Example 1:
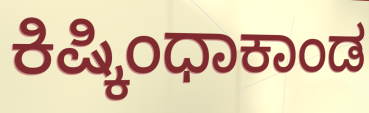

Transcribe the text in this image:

ಕಿಷ್ಕಿಂಧಾಕಾಂಡ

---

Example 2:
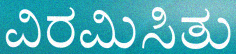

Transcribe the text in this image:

ವಿರಮಿಸಿತು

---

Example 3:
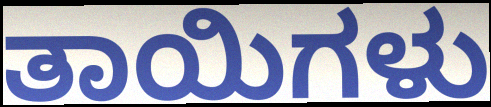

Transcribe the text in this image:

ತಾಯಿಗಳು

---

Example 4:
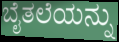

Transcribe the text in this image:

ಬೈತಲೆಯನ್ನು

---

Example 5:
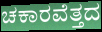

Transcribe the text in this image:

ಚಕಾರವೆತ್ತದ